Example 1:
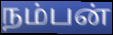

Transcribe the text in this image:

நம்பன்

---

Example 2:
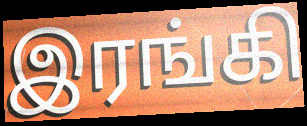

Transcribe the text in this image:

இரங்கி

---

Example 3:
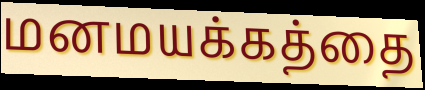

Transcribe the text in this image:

மனமயக்கத்தை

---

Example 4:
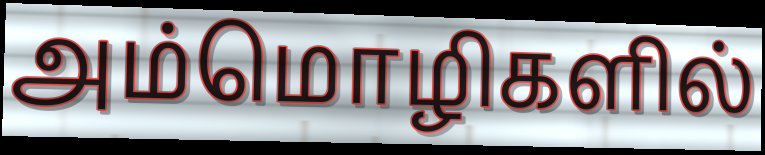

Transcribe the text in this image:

அம்மொழிகளில்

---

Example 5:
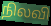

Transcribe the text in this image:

நிலவி